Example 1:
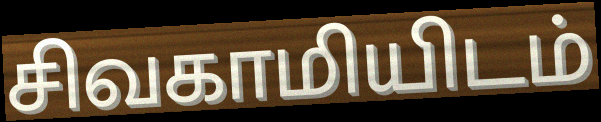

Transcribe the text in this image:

சிவகாமியிடம்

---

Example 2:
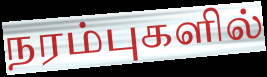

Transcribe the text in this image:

நரம்புகளில்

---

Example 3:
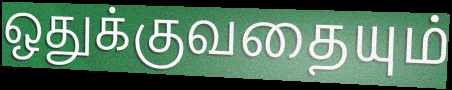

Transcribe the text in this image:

ஒதுக்குவதையும்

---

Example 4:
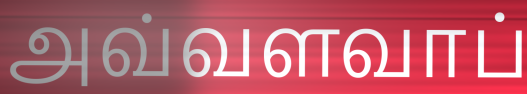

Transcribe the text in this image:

அவ்வளவாப்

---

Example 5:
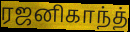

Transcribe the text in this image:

ரஜனிகாந்த்